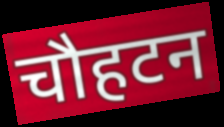
चौहटन